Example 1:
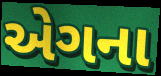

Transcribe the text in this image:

એગના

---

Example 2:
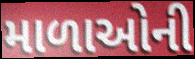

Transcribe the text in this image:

માળાઓની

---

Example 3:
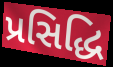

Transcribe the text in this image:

પ્રસિદ્ધિ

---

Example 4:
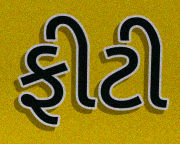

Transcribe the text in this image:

ફીટી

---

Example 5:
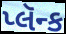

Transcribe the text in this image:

પ્લૅન્ક